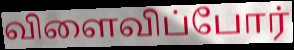
விளைவிப்போர்